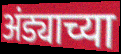
अंड्याच्या